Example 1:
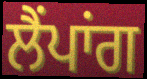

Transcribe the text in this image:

ਲੈਂਪਾਂਗ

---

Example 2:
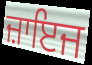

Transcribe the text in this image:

ਜ਼ਾਇਜ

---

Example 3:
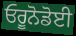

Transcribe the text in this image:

ਓਰੂਨੋਡੋਈ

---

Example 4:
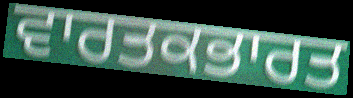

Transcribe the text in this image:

ਵਾਰਤਕਭਾਰਤ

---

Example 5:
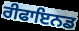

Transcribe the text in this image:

ਰੀਫਾਇਨਡ